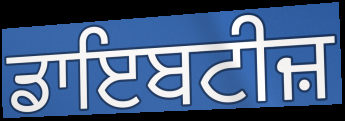
ਡਾਇਬਟੀਜ਼